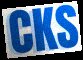
CKS